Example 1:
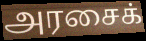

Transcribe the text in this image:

அரசைக்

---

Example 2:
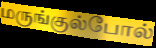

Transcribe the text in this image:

மருங்குல்போல்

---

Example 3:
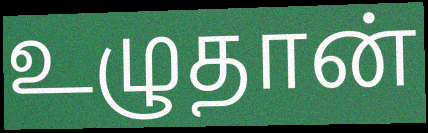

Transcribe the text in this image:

உழுதான்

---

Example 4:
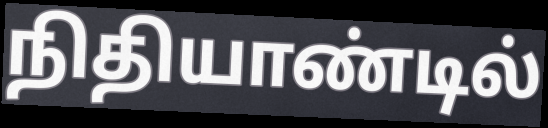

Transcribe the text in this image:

நிதியாண்டில்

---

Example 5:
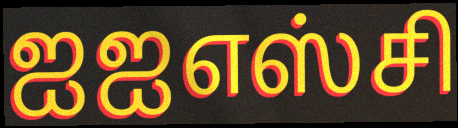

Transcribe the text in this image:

ஐஐஎஸ்சி